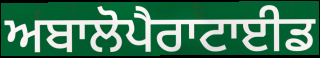
ਅਬਾਲੋਪੈਰਾਟਾਈਡ